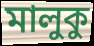
মালুকু